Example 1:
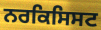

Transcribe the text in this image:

ਨਰਕਿਸਿਸਟ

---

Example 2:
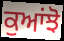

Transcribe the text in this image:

ਕੁਆਂਝੋ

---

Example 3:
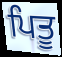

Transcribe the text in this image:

ਪਿਤੂ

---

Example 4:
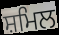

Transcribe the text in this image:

ਸ਼ਮਿਲ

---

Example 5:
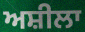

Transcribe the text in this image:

ਅਸ਼ੀਲਾ